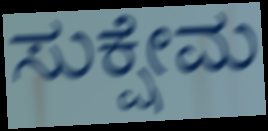
ಸುಕ್ಷೇಮ